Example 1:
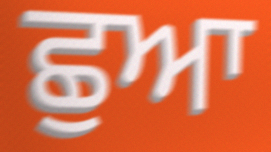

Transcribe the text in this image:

ਛੁਆ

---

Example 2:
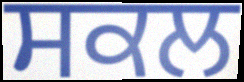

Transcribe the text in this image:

ਸਕਲ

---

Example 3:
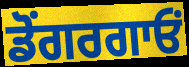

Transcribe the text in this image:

ਡੋਂਗਰਗਾਓਂ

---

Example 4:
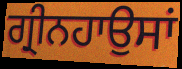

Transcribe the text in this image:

ਗ੍ਰੀਨਹਾਉਸਾਂ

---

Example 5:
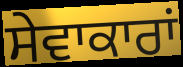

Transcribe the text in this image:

ਸੇਵਾਕਾਰਾਂ